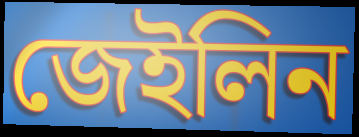
জেইলিন